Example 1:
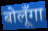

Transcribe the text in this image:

बोलूँगा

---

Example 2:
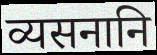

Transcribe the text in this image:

व्यसनानि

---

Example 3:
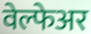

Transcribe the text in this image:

वेल्फेअर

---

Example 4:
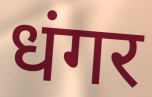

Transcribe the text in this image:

धंगर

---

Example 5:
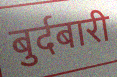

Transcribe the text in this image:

बुर्दबारी